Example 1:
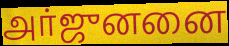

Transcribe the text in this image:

அர்ஜுனனை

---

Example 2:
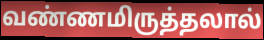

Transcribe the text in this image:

வண்ணமிருத்தலால்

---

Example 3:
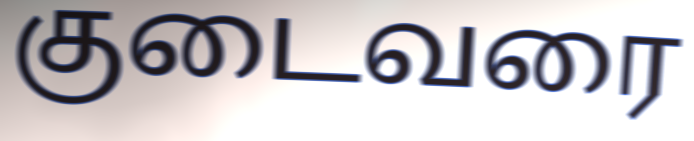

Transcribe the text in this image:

குடைவரை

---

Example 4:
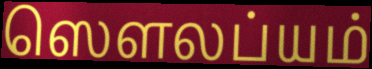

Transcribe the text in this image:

ஸௌலப்யம்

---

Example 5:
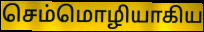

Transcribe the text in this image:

செம்மொழியாகிய